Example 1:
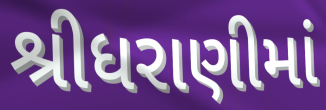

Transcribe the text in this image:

શ્રીધરાણીમાં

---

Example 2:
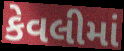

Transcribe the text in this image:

કેવલીમાં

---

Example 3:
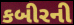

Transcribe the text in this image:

કબીરની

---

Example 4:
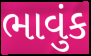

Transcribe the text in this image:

ભાવુંક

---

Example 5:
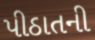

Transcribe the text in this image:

પીઠાતની